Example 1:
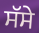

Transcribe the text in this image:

ਸੱਸੇ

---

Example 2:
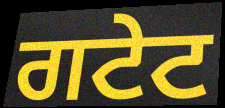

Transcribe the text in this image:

ਗਟੇਟ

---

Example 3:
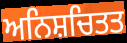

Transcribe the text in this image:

ਅਨਿਸ਼ਚਿਤਤ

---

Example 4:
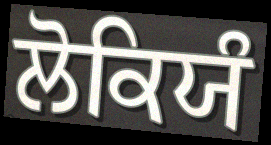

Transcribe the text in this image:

ਲੋਕਿਯੰ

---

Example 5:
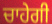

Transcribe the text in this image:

ਚਾਹੇਗੀ